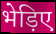
भेड़िए